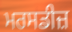
ਮਰਸਡੀਜ਼